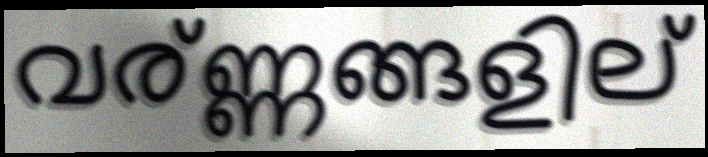
വര്ണ്ണങ്ങളില്